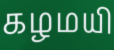
கழமயி